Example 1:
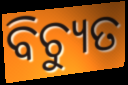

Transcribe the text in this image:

ବିଚ୍ୟୁତ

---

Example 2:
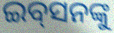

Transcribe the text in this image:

ଇବ୍‌ସନଙ୍କୁ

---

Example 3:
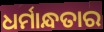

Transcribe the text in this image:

ଧର୍ମାନ୍ଧତାର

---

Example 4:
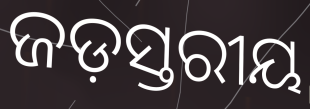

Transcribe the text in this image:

ଜଡ଼ସ୍ତରୀୟ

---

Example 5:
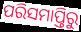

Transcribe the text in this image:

ପରିସମାପ୍ତିରୁ